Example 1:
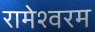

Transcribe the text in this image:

रामेश्वरम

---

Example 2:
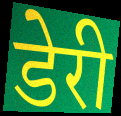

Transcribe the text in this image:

डेरी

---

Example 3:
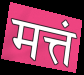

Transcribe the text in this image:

मत्तं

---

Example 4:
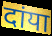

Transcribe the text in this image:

दांया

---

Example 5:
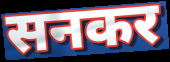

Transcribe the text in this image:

सनकर